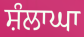
ਸ਼ੰਲਾਘਾ